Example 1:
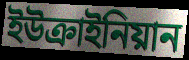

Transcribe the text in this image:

ইউক্রাইনিয়ান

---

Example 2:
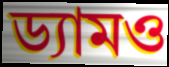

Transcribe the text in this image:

ড্যামও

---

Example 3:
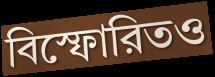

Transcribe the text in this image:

বিস্ফোরিতও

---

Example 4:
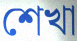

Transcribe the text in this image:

শেখা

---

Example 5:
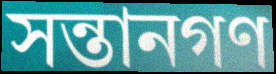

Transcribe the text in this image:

সন্তানগণ